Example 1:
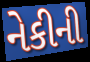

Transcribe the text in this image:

નેકીની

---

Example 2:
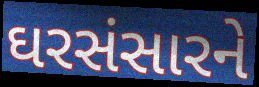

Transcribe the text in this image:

ઘરસંસારને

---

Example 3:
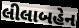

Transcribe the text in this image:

લીલાબહેન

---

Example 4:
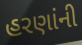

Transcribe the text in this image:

હરણાંની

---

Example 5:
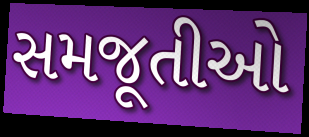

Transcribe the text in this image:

સમજૂતીઓ